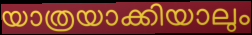
യാത്രയാക്കിയാലും